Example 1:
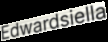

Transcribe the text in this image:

Edwardsiella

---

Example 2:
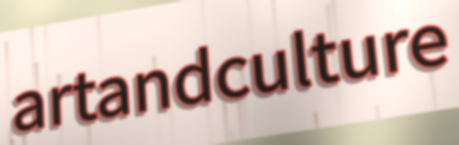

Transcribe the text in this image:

artandculture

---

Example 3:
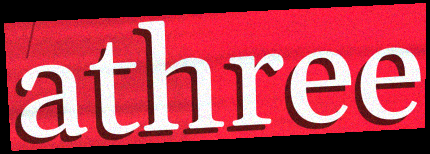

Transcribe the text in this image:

athree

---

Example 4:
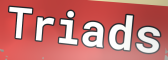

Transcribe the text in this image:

Triads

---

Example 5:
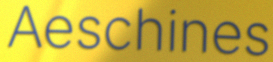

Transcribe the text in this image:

Aeschines